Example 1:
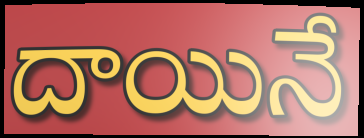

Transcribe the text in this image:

దాయినే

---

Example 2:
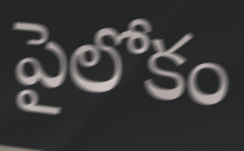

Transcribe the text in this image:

పైలోకం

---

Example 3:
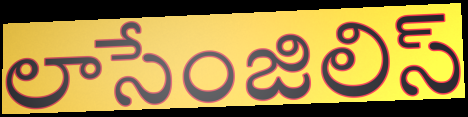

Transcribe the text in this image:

లాసేంజిలిస్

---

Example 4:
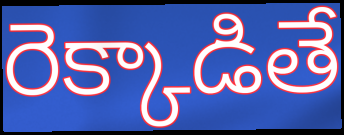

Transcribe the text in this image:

రెక్కాడితే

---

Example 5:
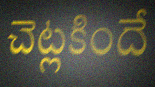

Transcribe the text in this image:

చెట్లకిందే